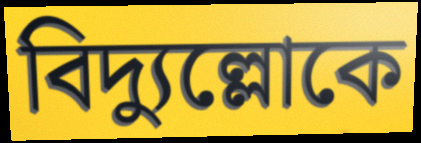
বিদ্যুল্লোকে